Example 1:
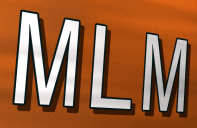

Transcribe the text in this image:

MLM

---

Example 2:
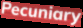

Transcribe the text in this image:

Pecuniary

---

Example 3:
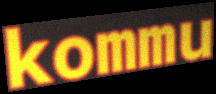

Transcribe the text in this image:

kommu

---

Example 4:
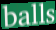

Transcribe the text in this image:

balls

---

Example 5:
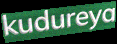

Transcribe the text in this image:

kudureya